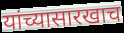
यांच्यासारखाच